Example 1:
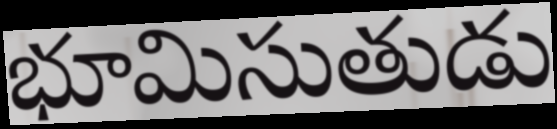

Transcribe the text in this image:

భూమిసుతుడు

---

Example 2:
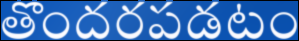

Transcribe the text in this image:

తొందరపడటం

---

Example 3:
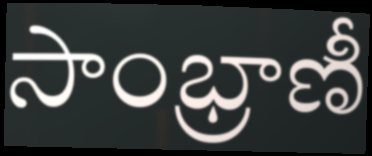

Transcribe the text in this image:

సాంభ్రాణీ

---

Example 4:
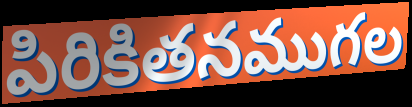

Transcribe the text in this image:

పిరికితనముగల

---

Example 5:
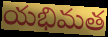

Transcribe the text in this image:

యభిమత